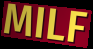
MILF